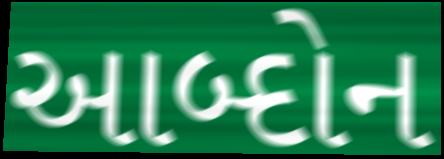
આબ્દોન